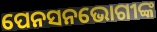
ପେନସନଭୋଗୀଙ୍କ